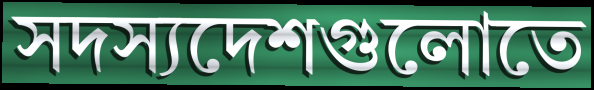
সদস্যদেশগুলোতে